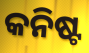
କନିଷ୍ଟ